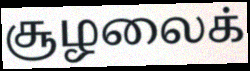
சூழலைக்